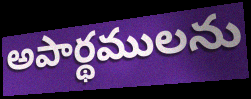
అపార్థములను